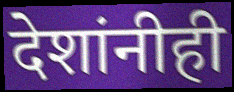
देशांनीही